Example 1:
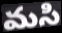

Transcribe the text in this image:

మసి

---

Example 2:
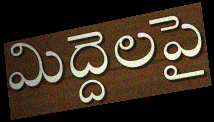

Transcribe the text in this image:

మిద్దెలపై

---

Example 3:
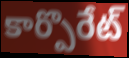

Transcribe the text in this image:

కార్పొరేట్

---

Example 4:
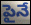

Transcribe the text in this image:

పైనే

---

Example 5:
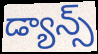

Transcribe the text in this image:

డ్యాన్స్